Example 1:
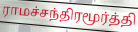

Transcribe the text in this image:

ராமச்சந்திரமூர்த்தி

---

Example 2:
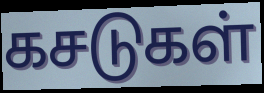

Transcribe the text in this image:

கசடுகள்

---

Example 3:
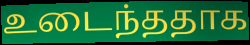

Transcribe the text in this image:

உடைந்ததாக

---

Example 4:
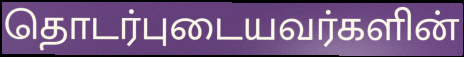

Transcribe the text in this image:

தொடர்புடையவர்களின்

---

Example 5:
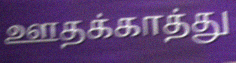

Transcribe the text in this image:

ஊதக்காத்து